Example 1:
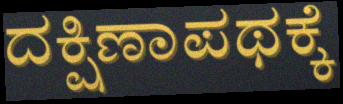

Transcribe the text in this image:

ದಕ್ಷಿಣಾಪಥಕ್ಕೆ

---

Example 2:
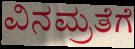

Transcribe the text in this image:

ವಿನಮ್ರತೆಗೆ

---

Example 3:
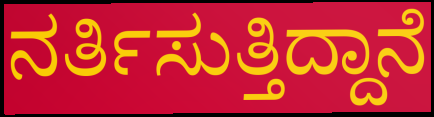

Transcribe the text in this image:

ನರ್ತಿಸುತ್ತಿದ್ದಾನೆ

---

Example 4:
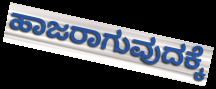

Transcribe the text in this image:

ಹಾಜರಾಗುವುದಕ್ಕೆ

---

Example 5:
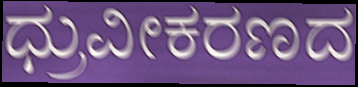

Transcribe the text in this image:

ಧ್ರುವೀಕರಣದ